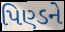
પિણ્ડને